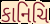
કાનિચિ